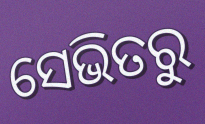
ସେଭିତରୁ